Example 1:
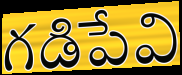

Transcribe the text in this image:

గడిపేవి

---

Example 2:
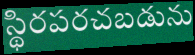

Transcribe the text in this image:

స్థిరపరచబడును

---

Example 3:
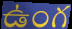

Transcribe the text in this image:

ఉంగ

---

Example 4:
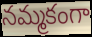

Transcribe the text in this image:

నమ్మకంగా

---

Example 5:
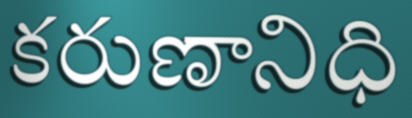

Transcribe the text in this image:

కరుణానిధి